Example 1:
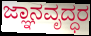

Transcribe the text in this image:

ಜ್ಞಾನವೃದ್ಧರ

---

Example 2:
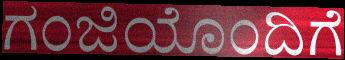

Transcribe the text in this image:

ಗಂಜಿಯೊಂದಿಗೆ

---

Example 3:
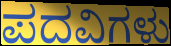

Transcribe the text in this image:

ಪದವಿಗಳು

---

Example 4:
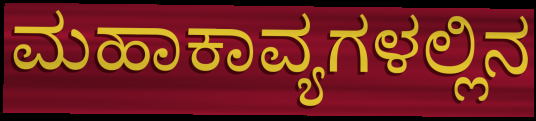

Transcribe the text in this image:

ಮಹಾಕಾವ್ಯಗಳಲ್ಲಿನ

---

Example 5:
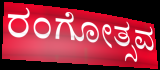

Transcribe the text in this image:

ರಂಗೋತ್ಸವ